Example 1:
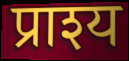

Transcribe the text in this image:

प्राश्य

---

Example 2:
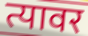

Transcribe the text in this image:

त्यावर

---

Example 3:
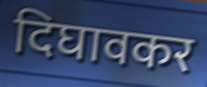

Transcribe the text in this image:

दिघावकर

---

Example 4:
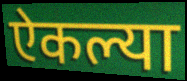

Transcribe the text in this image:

ऐकल्या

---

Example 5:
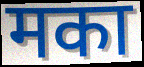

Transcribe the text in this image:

मका